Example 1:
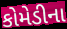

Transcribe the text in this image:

કોમેડીના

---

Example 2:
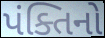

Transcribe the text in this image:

પંક્તિનો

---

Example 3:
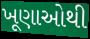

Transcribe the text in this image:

ખૂણાઓથી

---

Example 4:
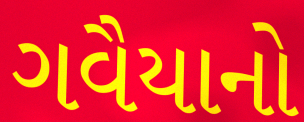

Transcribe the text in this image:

ગવૈયાનો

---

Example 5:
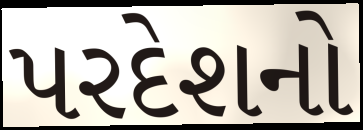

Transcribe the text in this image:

પરદેશનો